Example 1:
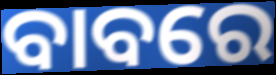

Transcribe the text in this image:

ବାବରେ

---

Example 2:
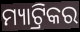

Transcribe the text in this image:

ମ୍ୟାଟ୍ରିକର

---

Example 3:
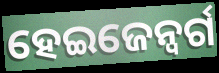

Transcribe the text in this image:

ହେଇଜେନ୍ବର୍ଗ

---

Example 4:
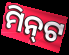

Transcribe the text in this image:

ମିନ୍‌ଟ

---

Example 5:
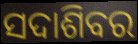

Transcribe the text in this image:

ସଦାଶିବର